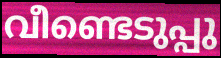
വീണ്ടെടുപ്പു